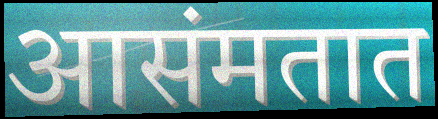
आसंमतात